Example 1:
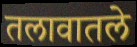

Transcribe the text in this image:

तलावातले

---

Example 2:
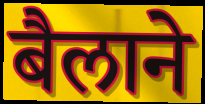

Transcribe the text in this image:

बैलाने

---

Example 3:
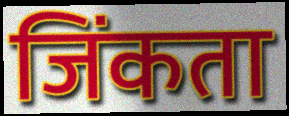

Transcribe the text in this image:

जिंकता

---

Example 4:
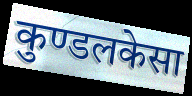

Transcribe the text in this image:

कुण्डलकेसा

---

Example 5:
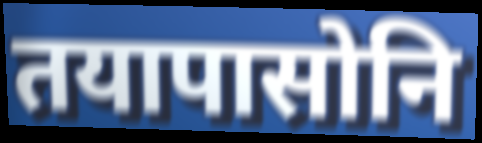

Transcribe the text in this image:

तयापासोनि